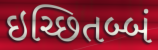
ઇચ્છિતબ્બં